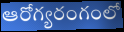
ఆరోగ్యరంగంలో